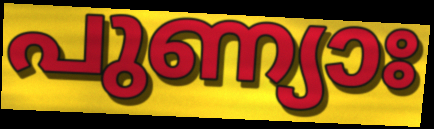
പുണ്യാഃ